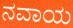
ನವಾಯ